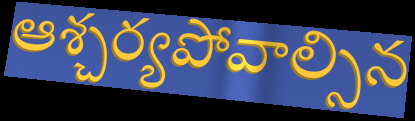
ఆశ్చర్యపోవాల్సిన